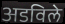
अडविले